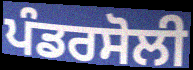
ਪੰਡਰਸੋਲੀ